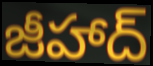
జీహాద్